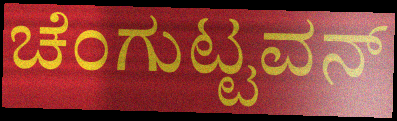
ಚೆಂಗುಟ್ಟವನ್